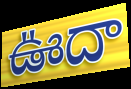
ఊదా